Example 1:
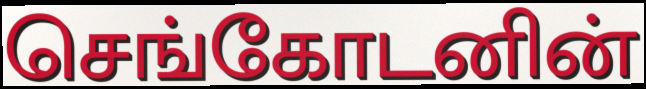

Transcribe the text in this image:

செங்கோடனின்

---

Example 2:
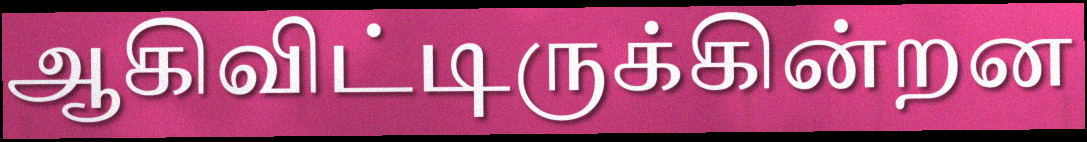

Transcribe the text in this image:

ஆகிவிட்டிருக்கின்றன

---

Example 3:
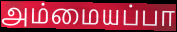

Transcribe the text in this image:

அம்மையப்பா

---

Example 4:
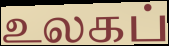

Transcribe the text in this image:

உலகப்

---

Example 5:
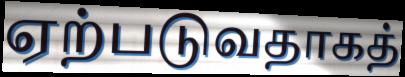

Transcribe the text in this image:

ஏற்படுவதாகத்